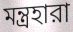
মন্ত্রহারা